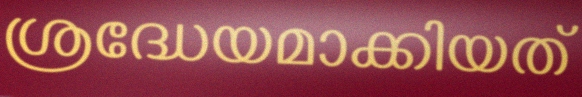
ശ്രദ്ധേയമാക്കിയത്